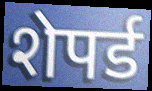
शेपर्ड